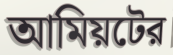
আমিয়টের